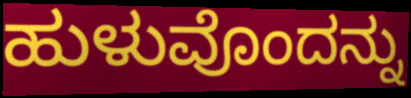
ಹುಳುವೊಂದನ್ನು